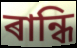
ৰান্ধি